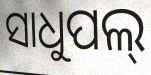
ସାଧୁପଲ୍